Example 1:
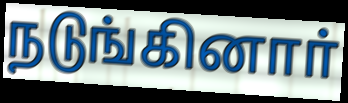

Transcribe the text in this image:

நடுங்கினார்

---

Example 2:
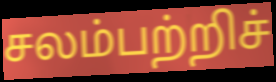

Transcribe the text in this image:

சலம்பற்றிச்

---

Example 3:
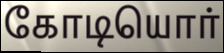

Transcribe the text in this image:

கோடியொர்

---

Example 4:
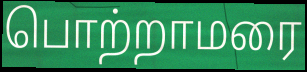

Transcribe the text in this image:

பொற்றாமரை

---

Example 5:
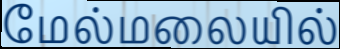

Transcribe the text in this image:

மேல்மலையில்